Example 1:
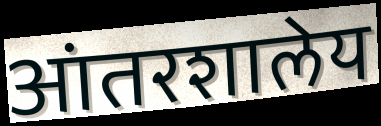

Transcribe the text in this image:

आंतरशालेय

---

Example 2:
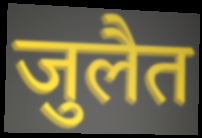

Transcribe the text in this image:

जुलैत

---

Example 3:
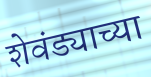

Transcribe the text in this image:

शेवंड्याच्या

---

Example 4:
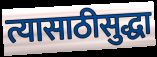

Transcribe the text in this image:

त्यासाठीसुद्धा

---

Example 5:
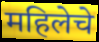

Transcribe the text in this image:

महिलेचे